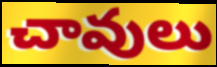
చావులు